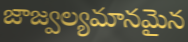
జాజ్వల్యమానమైన